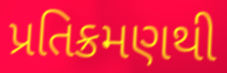
પ્રતિક્રમણથી